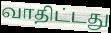
வாதிட்டது